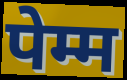
पेम्म